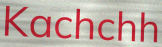
Kachchh